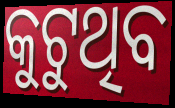
କୁଟୁଥିବ